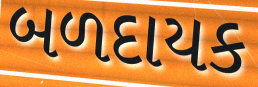
બળદાયક